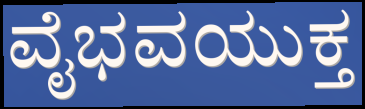
ವೈಭವಯುಕ್ತ